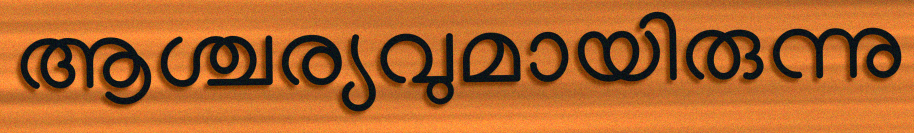
ആശ്ചര്യവുമായിരുന്നു